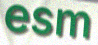
esm